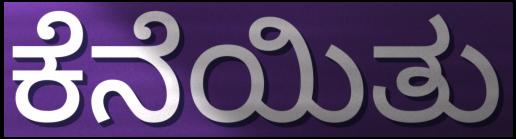
ಕೆನೆಯಿತು